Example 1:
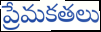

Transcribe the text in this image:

ప్రేమకతలు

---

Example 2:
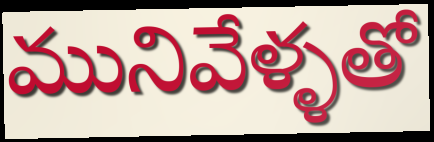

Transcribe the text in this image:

మునివేళ్ళతో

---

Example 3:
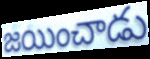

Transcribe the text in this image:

జయించాడు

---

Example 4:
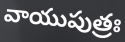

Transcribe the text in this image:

వాయుపుత్రః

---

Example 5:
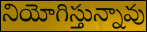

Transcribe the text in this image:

నియోగిస్తున్నావు